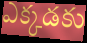
ఎక్కడకు